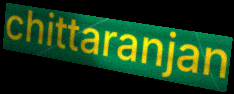
chittaranjan